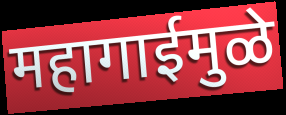
महागाईमुळे